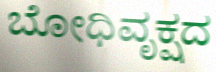
ಬೋಧಿವೃಕ್ಷದ